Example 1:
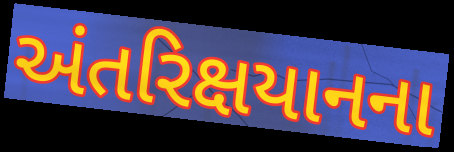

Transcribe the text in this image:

અંતરિક્ષયાનના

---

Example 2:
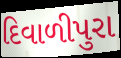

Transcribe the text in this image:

દિવાળીપુરા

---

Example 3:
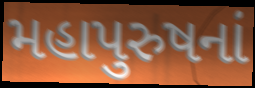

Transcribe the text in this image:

મહાપુરુષનાં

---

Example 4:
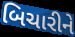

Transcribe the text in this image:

બિચારીને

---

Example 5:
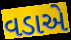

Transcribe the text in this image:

વડાએ